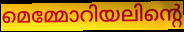
മെമ്മോറിയലിന്റെ